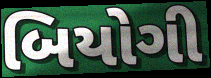
બિયોગી